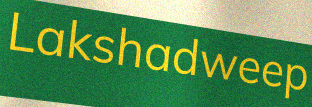
Lakshadweep